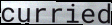
curried